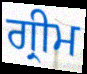
ਗ੍ਰੀਮ